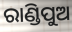
ରାଣ୍ଡିପୁଅ